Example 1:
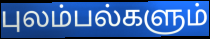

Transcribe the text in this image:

புலம்பல்களும்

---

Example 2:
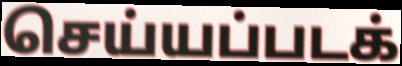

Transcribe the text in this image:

செய்யப்படக்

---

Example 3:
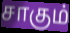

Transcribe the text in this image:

சாகும்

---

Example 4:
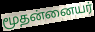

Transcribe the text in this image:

மூதன்னையர்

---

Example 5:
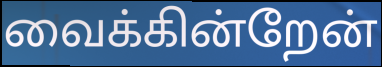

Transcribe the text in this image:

வைக்கின்றேன்